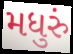
મધુરું